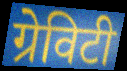
ग्रेविटी